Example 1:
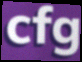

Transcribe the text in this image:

cfg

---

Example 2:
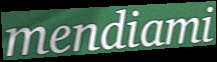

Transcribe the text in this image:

mendiami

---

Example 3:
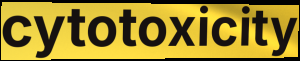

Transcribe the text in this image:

cytotoxicity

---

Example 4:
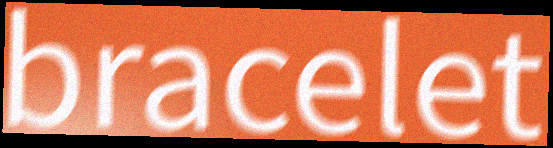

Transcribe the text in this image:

bracelet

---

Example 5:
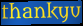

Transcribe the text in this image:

thankyu